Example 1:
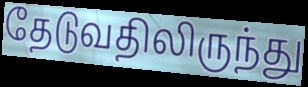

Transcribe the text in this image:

தேடுவதிலிருந்து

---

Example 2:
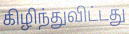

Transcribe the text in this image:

கிழிந்துவிட்டது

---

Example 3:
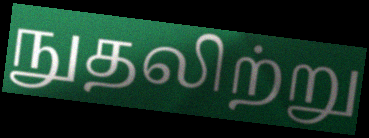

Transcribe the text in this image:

நுதலிற்று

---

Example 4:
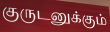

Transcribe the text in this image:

குருடனுக்கும்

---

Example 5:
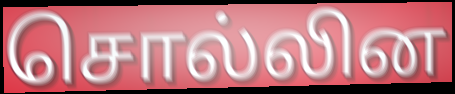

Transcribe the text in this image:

சொல்லின